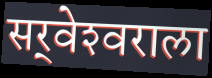
सर्वेश्वराला